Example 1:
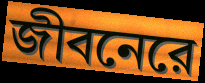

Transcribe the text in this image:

জীবনেরে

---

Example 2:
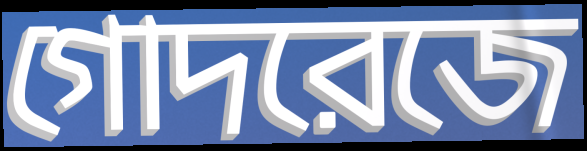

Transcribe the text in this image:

গোদরেজে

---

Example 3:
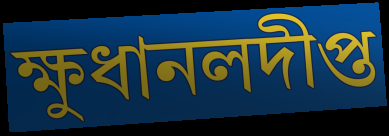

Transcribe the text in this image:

ক্ষুধানলদীপ্ত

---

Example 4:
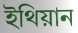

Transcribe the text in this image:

ইথিয়ান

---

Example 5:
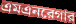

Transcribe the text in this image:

এমএনরেগার